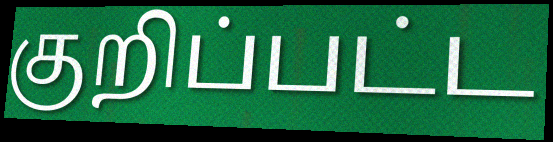
குறிப்பட்ட